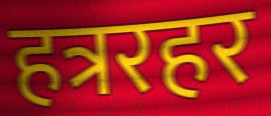
हत्ररहर